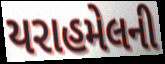
યરાહમેલની